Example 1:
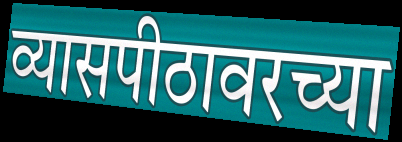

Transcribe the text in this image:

व्यासपीठावरच्या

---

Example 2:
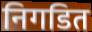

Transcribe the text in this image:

निगडित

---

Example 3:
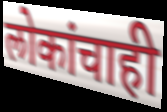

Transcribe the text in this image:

लोकांचाही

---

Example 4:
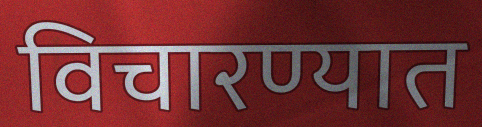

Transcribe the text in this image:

विचारण्यात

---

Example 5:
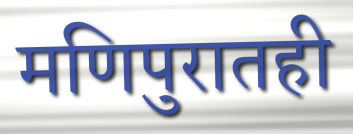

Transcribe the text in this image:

मणिपुरातही